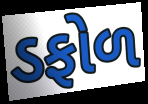
ડફોળ